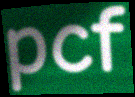
pcf